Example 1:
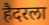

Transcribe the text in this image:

हैदरला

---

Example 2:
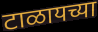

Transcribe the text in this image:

टाळायच्या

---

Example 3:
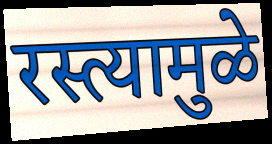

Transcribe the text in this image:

रस्त्यामुळे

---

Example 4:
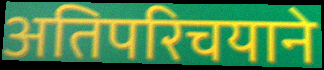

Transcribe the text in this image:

अतिपरिचयाने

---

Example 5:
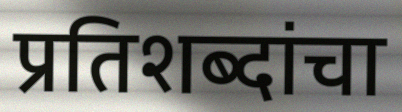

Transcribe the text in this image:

प्रतिशब्दांचा